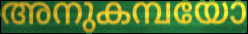
അനുകമ്പയോ